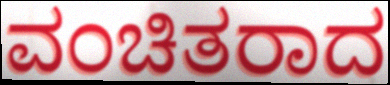
ವಂಚಿತರಾದ